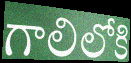
గాలిలోకి